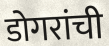
डोगरांची